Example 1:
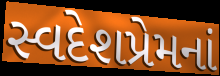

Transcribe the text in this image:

સ્વદેશપ્રેમનાં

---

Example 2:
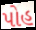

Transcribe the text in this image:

પોહ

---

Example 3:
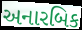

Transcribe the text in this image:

અનારબિક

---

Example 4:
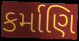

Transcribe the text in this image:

કર્માણિ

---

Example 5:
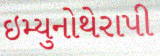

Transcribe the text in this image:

ઇમ્યુનોથેરાપી